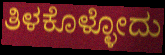
ತಿಳಕೊಳ್ಳೋದು